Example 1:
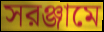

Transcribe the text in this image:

সরঞ্জামে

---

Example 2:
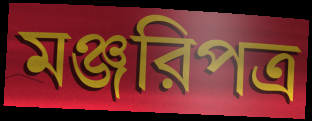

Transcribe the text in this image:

মঞ্জরিপত্র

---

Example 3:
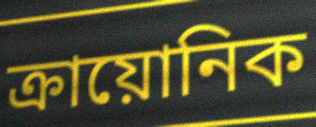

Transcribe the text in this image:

ক্রায়োনিক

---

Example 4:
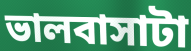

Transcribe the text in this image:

ভালবাসাটা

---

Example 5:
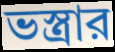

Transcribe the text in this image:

ভস্ত্রার